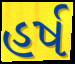
હર્ષ